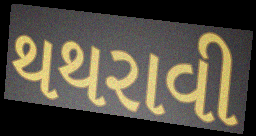
થથરાવી